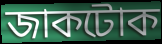
জাকটোক